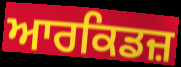
ਆਰਕਿਡਜ਼